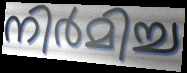
നിർമിച്ച